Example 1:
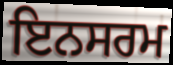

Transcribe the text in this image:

ਇਨਸਰਮ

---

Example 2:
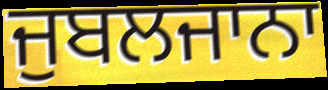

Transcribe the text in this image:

ਜੁਬਲਜਾਨਾ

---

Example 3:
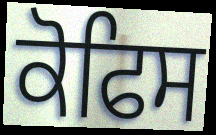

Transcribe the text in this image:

ਕੋਫਿਸ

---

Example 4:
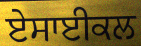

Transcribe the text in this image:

ਏਸਾਈਕਲ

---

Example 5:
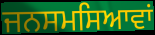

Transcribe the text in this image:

ਜਨਸਮਸਿਆਵਾਂ